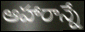
ఆహారాన్నే